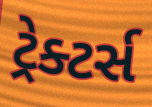
ટ્રેક્ટર્સ